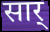
सार्